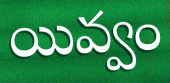
యివ్వం